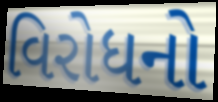
વિરોધનો